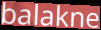
balakne